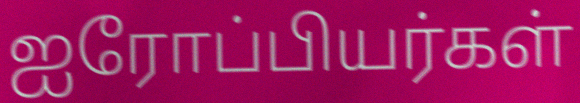
ஐரோப்பியர்கள்